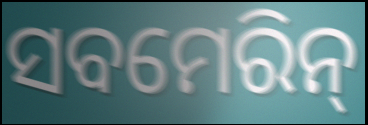
ସବମେରିନ୍